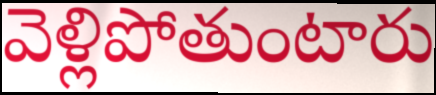
వెళ్లిపోతుంటారు